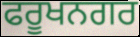
ਫਰੂਖਨਗਰ